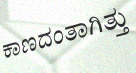
ಕಾಣದಂತಾಗಿತ್ತು